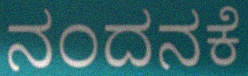
ನಂದನಕೆ